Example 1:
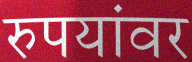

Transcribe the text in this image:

रुपयांवर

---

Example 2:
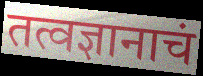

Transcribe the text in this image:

तत्वज्ञानाचं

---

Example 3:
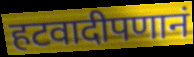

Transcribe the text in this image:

हटवादीपणानं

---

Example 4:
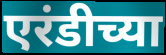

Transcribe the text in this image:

एरंडीच्या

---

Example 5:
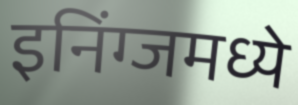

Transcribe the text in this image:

इनिंग्जमध्ये